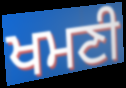
ਖਮਣੀ